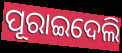
ପୂରାଇଦେଲି